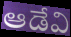
ఆడేవి